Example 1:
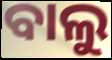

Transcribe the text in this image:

ବାଲୁ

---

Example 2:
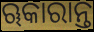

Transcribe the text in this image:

ୠକାରାନ୍ତ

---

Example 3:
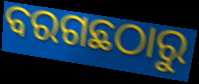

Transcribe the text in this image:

ବରଗଛଠାରୁ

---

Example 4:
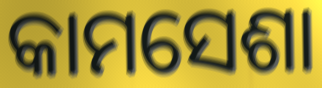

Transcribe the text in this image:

କାମସେଶା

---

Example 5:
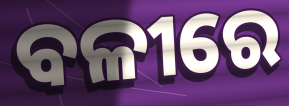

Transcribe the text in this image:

ବଳୀରେ